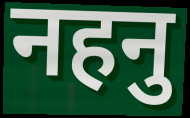
नहनु